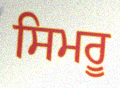
ਸਿਮਰੂ